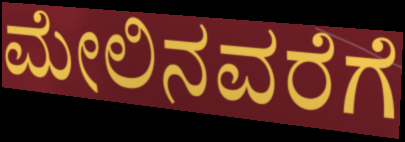
ಮೇಲಿನವರೆಗೆ